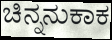
ಚಿನ್ನನುಕಾಕ